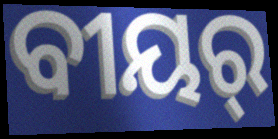
ବୀୟର୍